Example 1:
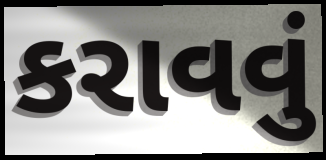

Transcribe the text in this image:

કરાવવું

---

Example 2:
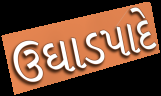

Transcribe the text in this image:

ઉઘાડપાદે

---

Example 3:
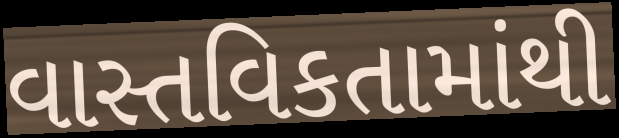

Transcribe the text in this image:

વાસ્તવિકતામાંથી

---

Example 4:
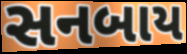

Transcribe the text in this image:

સનબાય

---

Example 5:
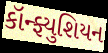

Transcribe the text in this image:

કૉન્ફ્યુશિયન